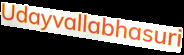
Udayvallabhasuri